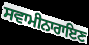
ਸਵਾਮੀਨਾਰਾਇਣ